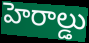
హెరాల్డు